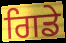
ਗਿਡੇ